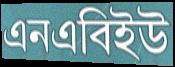
এনএবিইউ